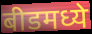
बीडमध्ये